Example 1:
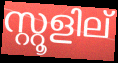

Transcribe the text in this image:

സ്റ്റൂളില്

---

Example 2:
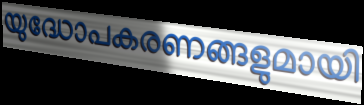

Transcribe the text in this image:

യുദ്ധോപകരണങ്ങളുമായി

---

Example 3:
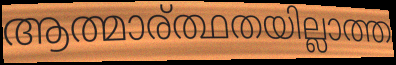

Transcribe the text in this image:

ആത്മാര്ത്ഥതയില്ലാത്ത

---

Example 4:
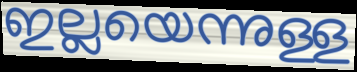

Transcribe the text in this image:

ഇല്ലയെന്നുള്ള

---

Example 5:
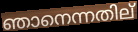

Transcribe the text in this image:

ഞാനെന്നതില്